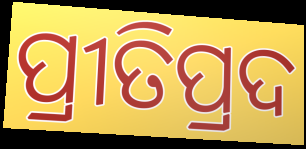
ପ୍ରୀତିପ୍ରଦ